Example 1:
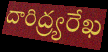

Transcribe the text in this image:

దారిద్ర్యరేఖ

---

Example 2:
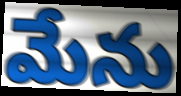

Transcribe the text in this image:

మేను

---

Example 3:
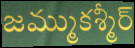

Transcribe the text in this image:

జమ్ముకశ్మీర్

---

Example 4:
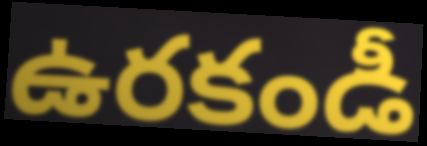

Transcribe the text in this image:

ఉరకండీ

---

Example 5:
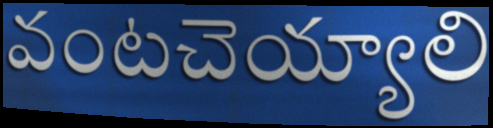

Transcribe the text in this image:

వంటచెయ్యాలి